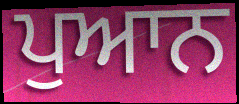
ਪੁਆਨ